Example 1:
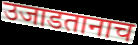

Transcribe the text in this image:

उजाडतानाच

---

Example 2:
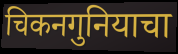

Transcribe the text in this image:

चिकनगुनियाचा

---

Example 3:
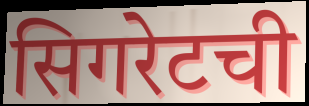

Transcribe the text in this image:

सिगरेटची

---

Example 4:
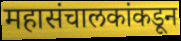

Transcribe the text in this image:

महासंचालकांकडून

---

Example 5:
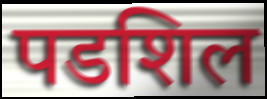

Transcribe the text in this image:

पडशिल